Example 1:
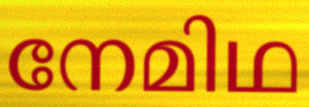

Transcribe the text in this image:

നേമിഥ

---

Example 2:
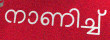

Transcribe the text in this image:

നാണിച്ച്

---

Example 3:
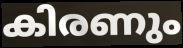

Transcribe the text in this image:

കിരണും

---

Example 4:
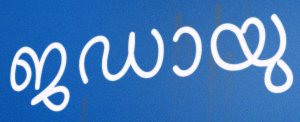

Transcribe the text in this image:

ജഡായു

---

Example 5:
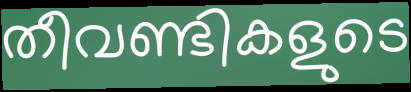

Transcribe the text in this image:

തീവണ്ടികളുടെ